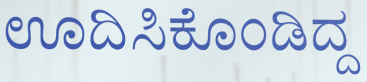
ಊದಿಸಿಕೊಂಡಿದ್ದ